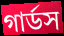
গার্ডস